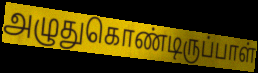
அழுதுகொண்டிருப்பாள்